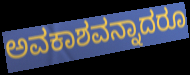
ಅವಕಾಶವನ್ನಾದರೂ